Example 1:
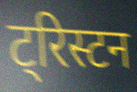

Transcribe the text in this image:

ट्रिस्टन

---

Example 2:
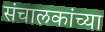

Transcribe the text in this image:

संचालकांच्या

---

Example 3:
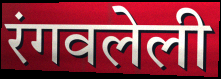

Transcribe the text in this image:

रंगवलेली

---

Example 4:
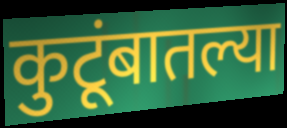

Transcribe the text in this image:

कुटूंबातल्या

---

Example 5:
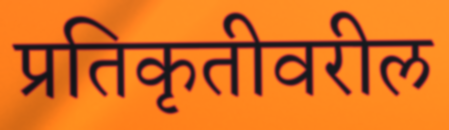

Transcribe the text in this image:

प्रतिकृतीवरील